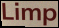
Limp